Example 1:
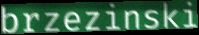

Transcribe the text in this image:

brzezinski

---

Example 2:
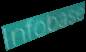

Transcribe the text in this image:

Infobase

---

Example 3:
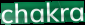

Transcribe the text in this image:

chakra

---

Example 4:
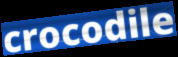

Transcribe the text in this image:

crocodile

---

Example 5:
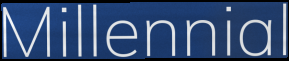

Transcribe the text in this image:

Millennial